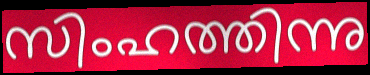
സിംഹത്തിന്നു